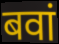
बवां